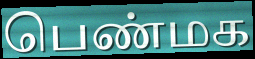
பெண்மக